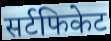
सर्टफिकेट